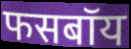
फसबॉय